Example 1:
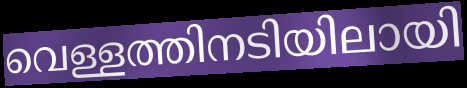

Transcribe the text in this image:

വെള്ളത്തിനടിയിലായി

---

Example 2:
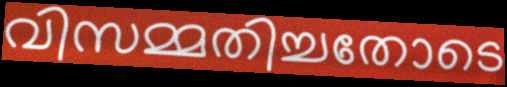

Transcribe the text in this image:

വിസമ്മതിച്ചതോടെ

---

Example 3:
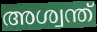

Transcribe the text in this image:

അശ്വന്ത്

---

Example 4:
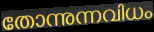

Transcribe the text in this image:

തോന്നുന്നവിധം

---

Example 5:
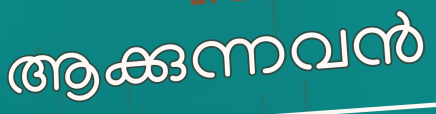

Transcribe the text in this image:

ആക്കുന്നവൻ